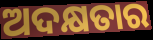
ଅଦକ୍ଷତାର